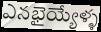
ఎనభైయ్యేళ్ళ